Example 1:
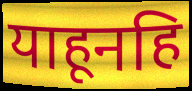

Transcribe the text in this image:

याहूनहि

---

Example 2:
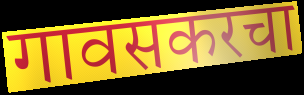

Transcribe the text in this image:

गावसकरचा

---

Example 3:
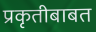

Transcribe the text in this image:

प्रकृतीबाबत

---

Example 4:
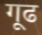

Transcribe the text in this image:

गूढ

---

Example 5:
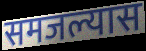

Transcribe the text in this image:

समजल्यास